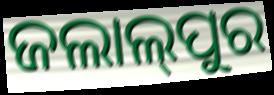
ଜଲାଲ୍‍ପୁର